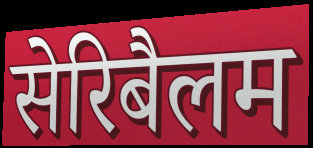
सेरिबैलम